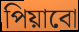
পিয়াবো